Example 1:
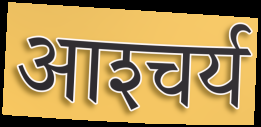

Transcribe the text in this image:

आश्‍चर्य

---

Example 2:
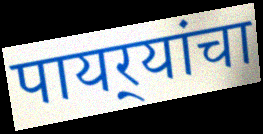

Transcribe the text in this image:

पायर्यांचा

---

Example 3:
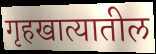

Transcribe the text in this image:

गृहखात्यातील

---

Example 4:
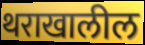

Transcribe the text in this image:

थराखालील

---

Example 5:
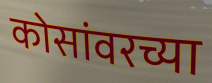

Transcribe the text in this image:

कोसांवरच्या